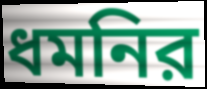
ধমনির